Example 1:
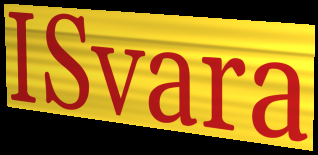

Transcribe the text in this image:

ISvara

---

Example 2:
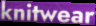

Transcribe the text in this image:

knitwear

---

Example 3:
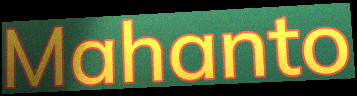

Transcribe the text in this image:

Mahanto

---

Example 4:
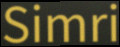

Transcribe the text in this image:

Simri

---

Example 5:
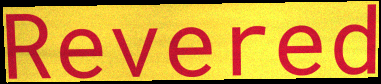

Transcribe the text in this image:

Revered